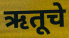
ऋतूचे